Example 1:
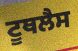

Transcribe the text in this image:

ਟੂਥਲੈਸ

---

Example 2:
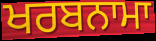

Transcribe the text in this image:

ਖਰਬਨਾਮਾ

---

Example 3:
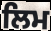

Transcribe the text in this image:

ਲਿਮ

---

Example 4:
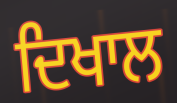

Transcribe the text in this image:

ਦਿਖਾਲ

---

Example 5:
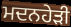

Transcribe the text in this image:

ਮਦਨਹੇੜੀ